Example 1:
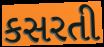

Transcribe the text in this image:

કસરતી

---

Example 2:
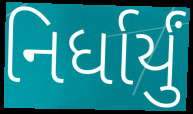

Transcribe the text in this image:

નિર્ધાર્યું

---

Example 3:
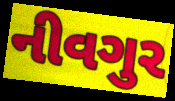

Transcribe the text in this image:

નીવગુર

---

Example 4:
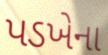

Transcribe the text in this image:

પડખેના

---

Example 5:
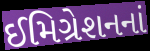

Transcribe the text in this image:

ઈમિગ્રેશનનાં